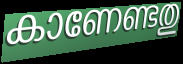
കാണേണ്ടതു